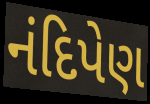
નંદિપેણ